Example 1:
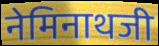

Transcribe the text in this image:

नेमिनाथजी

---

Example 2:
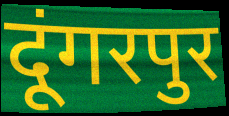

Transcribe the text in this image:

दूंगरपुर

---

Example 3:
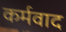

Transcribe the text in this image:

कर्मवाद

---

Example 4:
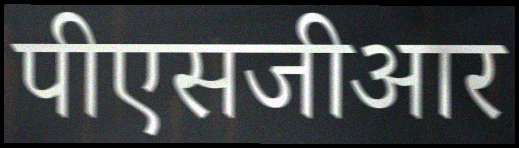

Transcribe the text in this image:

पीएसजीआर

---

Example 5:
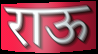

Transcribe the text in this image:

राऊ